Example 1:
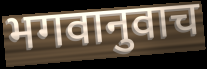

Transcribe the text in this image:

भगवानुवाच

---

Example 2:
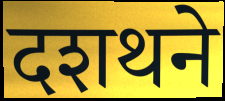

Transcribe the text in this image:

दशथने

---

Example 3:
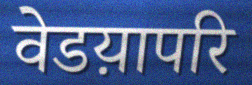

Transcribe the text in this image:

वेडय़ापरि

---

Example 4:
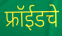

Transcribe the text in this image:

फ्रॉईडचे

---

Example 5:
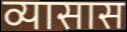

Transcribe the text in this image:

व्यासास